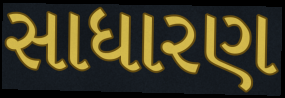
સાધારણ